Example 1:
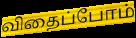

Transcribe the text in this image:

விதைப்போம்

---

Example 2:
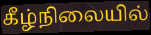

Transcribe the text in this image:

கீழ்நிலையில்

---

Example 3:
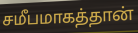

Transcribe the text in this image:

சமீபமாகத்தான்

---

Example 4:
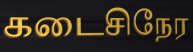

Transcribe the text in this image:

கடைசிநேர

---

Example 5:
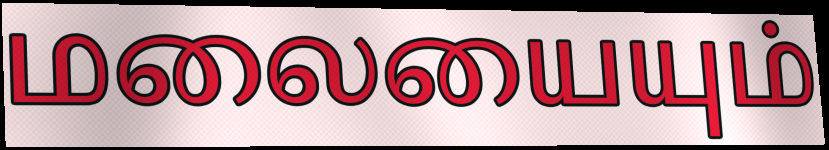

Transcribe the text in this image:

மலையையும்